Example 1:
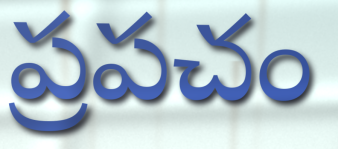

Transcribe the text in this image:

ప్రపచం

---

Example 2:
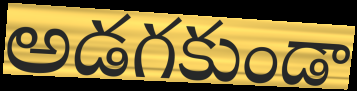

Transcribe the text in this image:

అడగకుండా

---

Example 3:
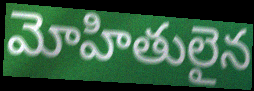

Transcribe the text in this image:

మోహితులైన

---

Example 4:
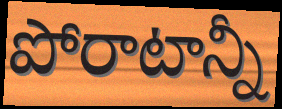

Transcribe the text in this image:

పోరాటాన్నీ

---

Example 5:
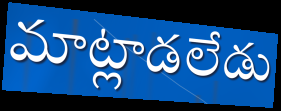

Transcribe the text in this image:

మాట్లాడలేడు